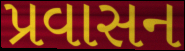
પ્રવાસન